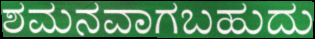
ಶಮನವಾಗಬಹುದು